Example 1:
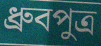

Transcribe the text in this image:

ধ্রুবপুত্র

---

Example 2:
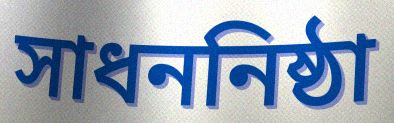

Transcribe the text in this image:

সাধননিষ্ঠা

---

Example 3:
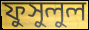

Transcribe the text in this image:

ফুসুলুল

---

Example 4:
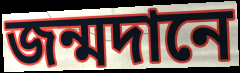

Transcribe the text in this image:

জন্মদানে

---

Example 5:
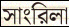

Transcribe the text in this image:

সাংরিলা